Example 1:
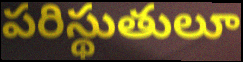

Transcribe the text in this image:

పరిస్థుతులూ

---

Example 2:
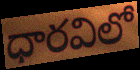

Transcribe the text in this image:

ధారవిలో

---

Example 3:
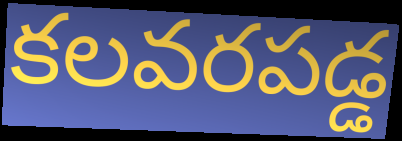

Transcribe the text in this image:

కలవరపడ్డ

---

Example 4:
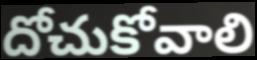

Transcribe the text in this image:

దోచుకోవాలి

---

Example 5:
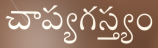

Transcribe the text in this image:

చాప్యగస్త్యం